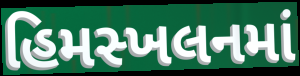
હિમસ્ખલનમાં